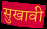
सुखावी